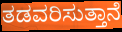
ತಡವರಿಸುತ್ತಾನೆ